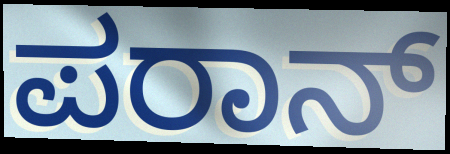
ಪರಾನ್